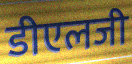
डीएलजी